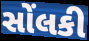
સોંલકી